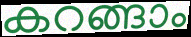
കറങ്ങാം